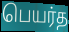
பெயர்த